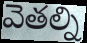
వెతల్ని